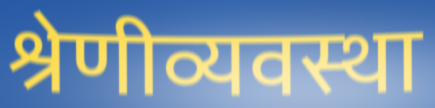
श्रेणीव्यवस्था